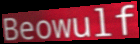
Beowulf